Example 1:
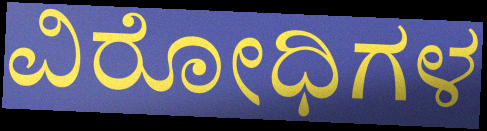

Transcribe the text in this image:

ವಿರೋಧಿಗಳ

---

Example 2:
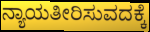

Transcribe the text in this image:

ನ್ಯಾಯತೀರಿಸುವದಕ್ಕೆ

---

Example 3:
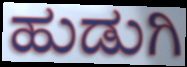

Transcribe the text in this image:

ಹುಡುಗಿ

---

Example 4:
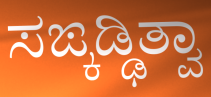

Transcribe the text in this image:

ಸಙ್ಕಡ್ಢಿತ್ವಾ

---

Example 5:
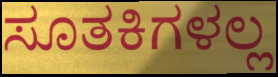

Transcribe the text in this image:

ಸೂತಕಿಗಳಲ್ಲ